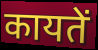
कायतें